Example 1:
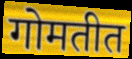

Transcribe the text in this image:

गोमतीत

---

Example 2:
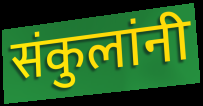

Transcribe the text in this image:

संकुलांनी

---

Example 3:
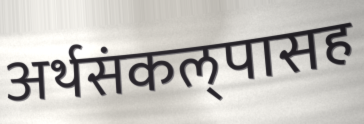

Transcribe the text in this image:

अर्थसंकल्पासह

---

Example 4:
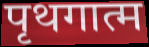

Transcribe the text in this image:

पृथगात्म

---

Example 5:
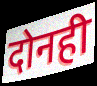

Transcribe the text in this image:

दोनही